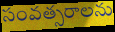
సంవత్సరాలను